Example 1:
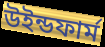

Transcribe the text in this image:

উইন্ডফার্ম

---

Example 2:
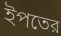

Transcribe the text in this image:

ইপতের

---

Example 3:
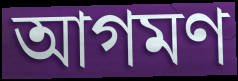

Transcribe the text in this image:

আগমণ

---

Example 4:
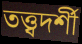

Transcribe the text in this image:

তত্ত্বদর্শী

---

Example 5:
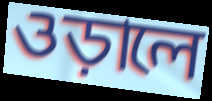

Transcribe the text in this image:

ওড়ালে